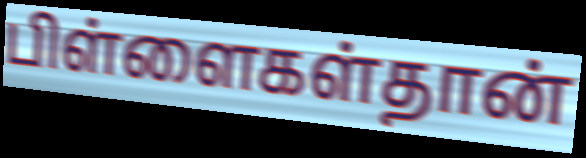
பிள்ளைகள்தான்